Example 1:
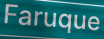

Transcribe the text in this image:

Faruque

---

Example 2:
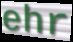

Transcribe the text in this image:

ehr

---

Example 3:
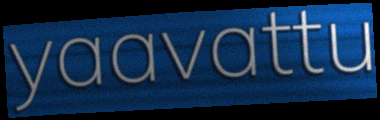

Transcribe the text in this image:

yaavattu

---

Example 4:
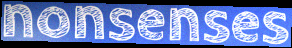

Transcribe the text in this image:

nonsenses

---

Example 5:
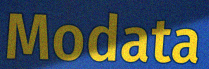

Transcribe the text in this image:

Modata